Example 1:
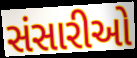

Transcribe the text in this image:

સંસારીઓ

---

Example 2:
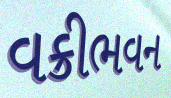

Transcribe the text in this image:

વક્રીભવન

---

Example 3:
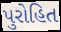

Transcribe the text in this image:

પુરોહિત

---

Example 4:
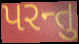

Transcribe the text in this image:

પરન્તુ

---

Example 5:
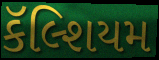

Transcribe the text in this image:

કૅલ્શિયમ